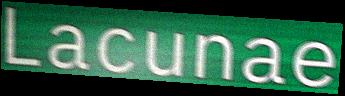
Lacunae